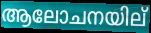
ആലോചനയില്